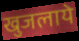
खुजलाये